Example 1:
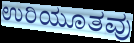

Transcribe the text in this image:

ಉರಿಯೂತವು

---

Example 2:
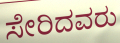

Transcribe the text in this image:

ಸೇರಿದವರು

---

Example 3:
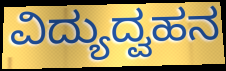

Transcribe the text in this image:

ವಿದ್ಯುದ್ವಹನ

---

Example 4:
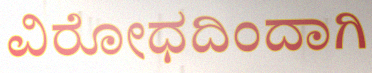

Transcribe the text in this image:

ವಿರೋಧದಿಂದಾಗಿ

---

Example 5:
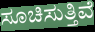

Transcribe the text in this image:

ಸೂಚಿಸುತ್ತಿವೆ